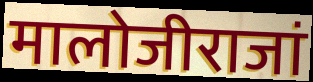
मालोजीराजां